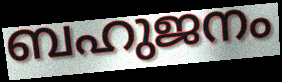
ബഹുജനം